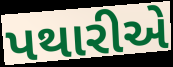
પથારીએ